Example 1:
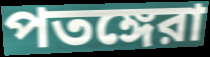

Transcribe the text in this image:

পতঙ্গেরা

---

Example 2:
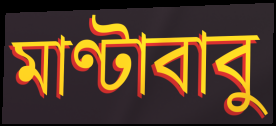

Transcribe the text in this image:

মাণ্টাবাবু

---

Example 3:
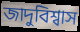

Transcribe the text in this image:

জাদুবিশ্বাস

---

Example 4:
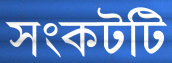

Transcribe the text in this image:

সংকটটি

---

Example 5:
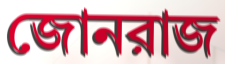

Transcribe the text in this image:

জোনরাজ